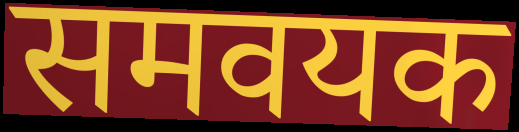
समवयक